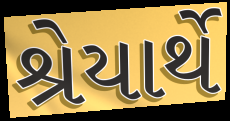
શ્રેયાર્થે